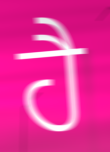
ਹੈ